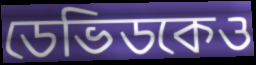
ডেভিডকেও